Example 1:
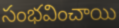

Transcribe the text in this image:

సంభవించాయి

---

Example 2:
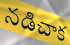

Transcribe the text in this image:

నడిచాక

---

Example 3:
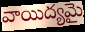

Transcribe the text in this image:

వాయిద్యమై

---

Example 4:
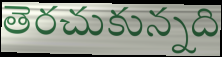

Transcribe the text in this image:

తెరచుకున్నది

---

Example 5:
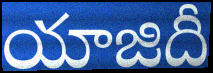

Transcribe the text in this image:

యాజిదీ